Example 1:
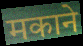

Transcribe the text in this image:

मकाने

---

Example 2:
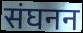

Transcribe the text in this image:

संघनन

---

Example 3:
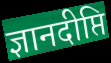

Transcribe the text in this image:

ज्ञानदीप्ति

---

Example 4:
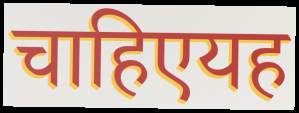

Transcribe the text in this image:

चाहिएयह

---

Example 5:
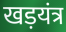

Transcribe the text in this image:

खड़यंत्र